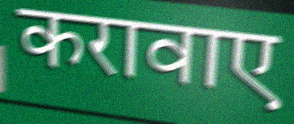
करावाए